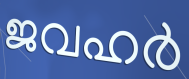
ജവഹർ